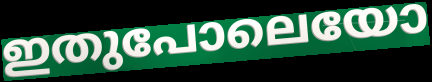
ഇതുപോലെയോ